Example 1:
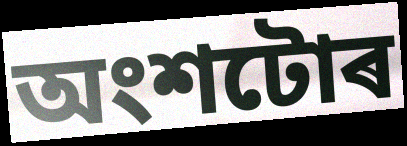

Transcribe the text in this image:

অংশটোৰ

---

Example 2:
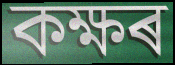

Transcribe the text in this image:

কক্ষৰ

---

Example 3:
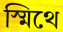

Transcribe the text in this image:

স্মিথে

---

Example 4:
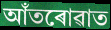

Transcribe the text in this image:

আঁতৰোৱাত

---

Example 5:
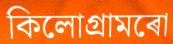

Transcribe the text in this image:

কিলোগ্ৰামৰো